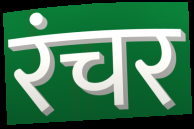
रंचर